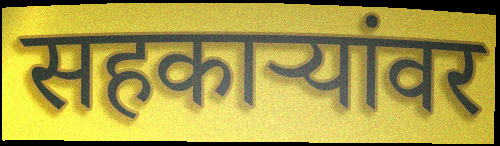
सहकार्‍यांवर